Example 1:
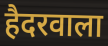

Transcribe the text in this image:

हैदरवाला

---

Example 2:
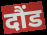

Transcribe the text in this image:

दौंड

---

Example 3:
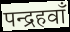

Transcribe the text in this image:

पन्द्रहवाँ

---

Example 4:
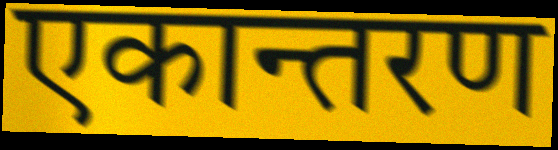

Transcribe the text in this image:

एकान्तरण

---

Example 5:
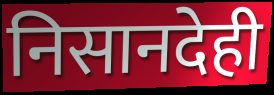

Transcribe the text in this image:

निसानदेही